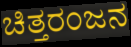
ಚಿತ್ತರಂಜನ